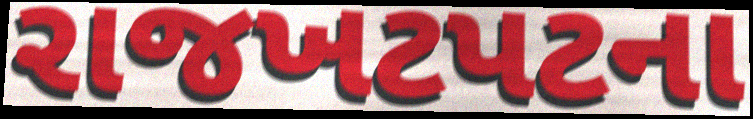
રાજખટપટના